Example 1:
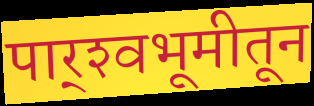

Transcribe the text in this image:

पार्श्वभूमीतून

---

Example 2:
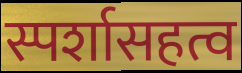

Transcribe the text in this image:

स्पर्शासहत्व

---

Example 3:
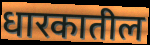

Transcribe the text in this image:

धारकातील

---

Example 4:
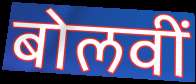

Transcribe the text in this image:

बोलवीं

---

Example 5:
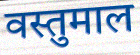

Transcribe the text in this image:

वस्तुमाल